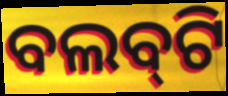
ବଲବ୍‌ଟି